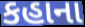
કહાના